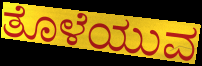
ತೊಳೆಯುವ